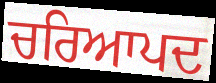
ਚਰਿਆਪਦ